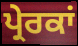
ਪ੍ਰੇਰਕਾਂ